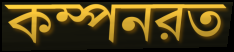
কম্পনরত